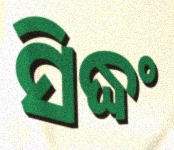
ସିଦ୍ଧଂ